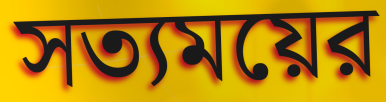
সত্যময়ের